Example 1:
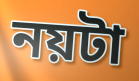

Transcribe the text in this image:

নয়টা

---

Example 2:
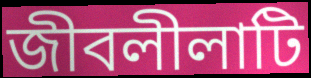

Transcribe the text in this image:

জীবলীলাটি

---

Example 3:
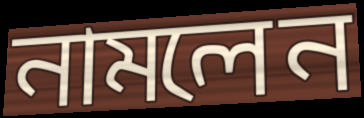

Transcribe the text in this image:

নামলেন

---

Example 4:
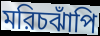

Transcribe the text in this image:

মরিচঝাঁপি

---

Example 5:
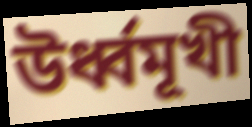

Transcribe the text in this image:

উর্ধ্বমূখী